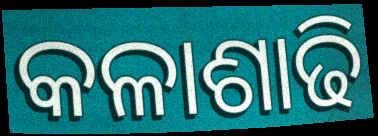
କଳାଶାଢି